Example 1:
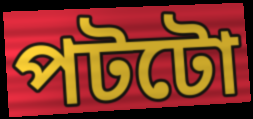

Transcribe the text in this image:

পটটো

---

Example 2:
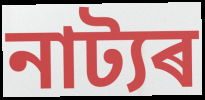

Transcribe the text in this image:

নাট্যৰ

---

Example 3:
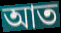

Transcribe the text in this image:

আত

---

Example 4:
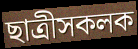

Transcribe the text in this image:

ছাত্ৰীসকলক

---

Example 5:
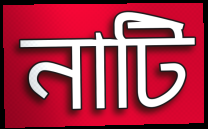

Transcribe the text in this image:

নাটি